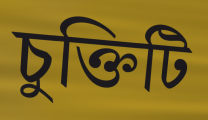
চুক্তিটি